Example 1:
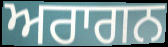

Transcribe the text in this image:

ਅਰਾਗਨ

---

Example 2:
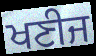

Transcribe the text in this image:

ਖਣੀਜ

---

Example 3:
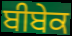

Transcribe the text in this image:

ਬੀਬੇਕ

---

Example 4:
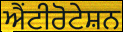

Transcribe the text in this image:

ਐਂਟੀਰੋਟੇਸ਼ਨ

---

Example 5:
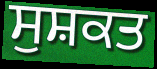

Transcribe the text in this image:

ਸੁਸ਼ਕਤ